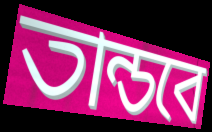
তান্ডবে